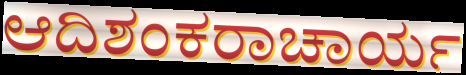
ಆದಿಶಂಕರಾಚಾರ್ಯ